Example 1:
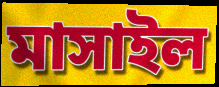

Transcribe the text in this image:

মাসাইল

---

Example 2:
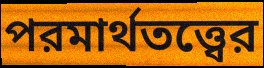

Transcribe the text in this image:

পরমার্থতত্ত্বের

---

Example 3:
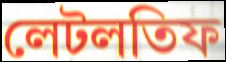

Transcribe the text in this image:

লেটলতিফ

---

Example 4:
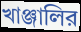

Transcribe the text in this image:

খাঞ্জালির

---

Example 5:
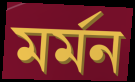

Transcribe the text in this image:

মর্মন